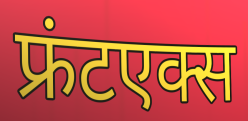
फ्रंटएक्स